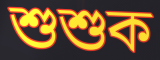
শুশুক